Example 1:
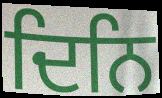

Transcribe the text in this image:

ਦਿਨਿ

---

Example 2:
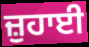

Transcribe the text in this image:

ਜ਼ੁਹਾਈ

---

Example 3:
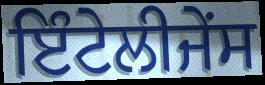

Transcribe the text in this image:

ਇੰਟੇਲੀਜੇੰਸ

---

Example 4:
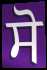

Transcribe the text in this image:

ਸੋ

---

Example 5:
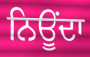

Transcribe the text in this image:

ਨਿਊਂਦਾ